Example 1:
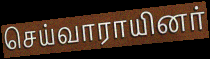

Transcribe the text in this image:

செய்வாராயினர்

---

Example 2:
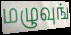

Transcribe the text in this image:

மழுவுங்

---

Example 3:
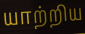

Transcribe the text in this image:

யாற்றிய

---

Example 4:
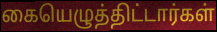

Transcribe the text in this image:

கையெழுத்திட்டார்கள்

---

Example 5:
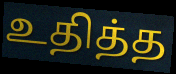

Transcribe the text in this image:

உதித்த